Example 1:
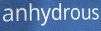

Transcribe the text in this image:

anhydrous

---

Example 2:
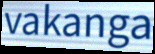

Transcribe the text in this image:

vakanga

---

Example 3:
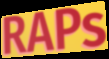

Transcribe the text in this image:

RAPs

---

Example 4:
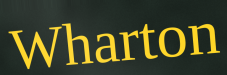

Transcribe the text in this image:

Wharton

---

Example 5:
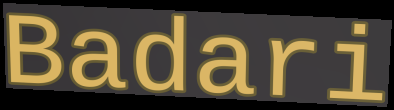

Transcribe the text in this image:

Badari